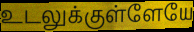
உடலுக்குள்ளேயே